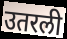
उतरली